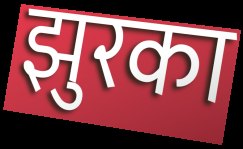
झुरका